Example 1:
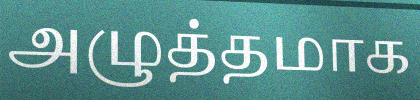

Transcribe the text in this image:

அழுத்தமாக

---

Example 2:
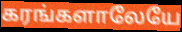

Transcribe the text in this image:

கரங்களாலேயே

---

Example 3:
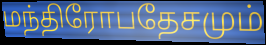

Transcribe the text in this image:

மந்திரோபதேசமும்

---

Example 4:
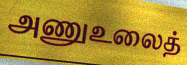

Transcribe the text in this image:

அணுஉலைத்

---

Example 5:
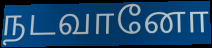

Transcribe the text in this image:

நடவானோ